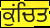
ਕੁਂਚਿਤ